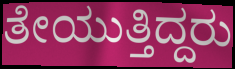
ತೇಯುತ್ತಿದ್ದರು